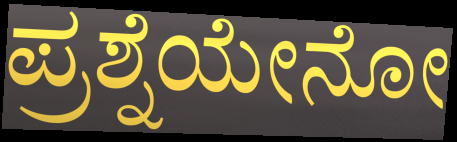
ಪ್ರಶ್ನೆಯೇನೋ